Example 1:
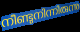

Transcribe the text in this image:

നീണ്ടുനിന്നിരുന്നു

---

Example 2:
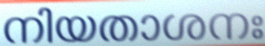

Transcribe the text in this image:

നിയതാശനഃ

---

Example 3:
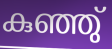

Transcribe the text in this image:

കുഞ്ഞു്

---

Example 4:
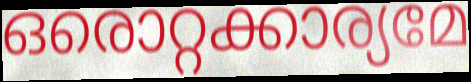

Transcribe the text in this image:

ഒരൊറ്റക്കാര്യമേ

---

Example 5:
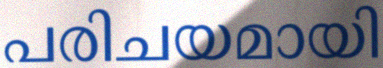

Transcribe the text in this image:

പരിചയമായി